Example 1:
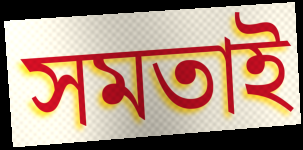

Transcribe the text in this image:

সমতাই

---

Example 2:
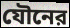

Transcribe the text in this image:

যৌনের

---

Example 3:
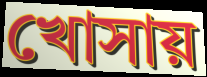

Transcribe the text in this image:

খোসায়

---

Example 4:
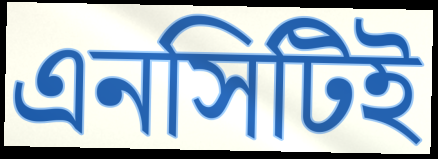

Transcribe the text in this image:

এনসিটিই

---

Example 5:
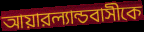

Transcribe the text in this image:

আয়ারল্যান্ডবাসীকে